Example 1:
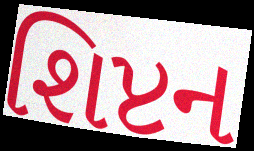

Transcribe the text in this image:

શિપ્ટન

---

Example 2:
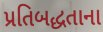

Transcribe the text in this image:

પ્રતિબદ્ધતાના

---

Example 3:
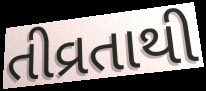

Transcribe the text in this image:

તીવ્રતાથી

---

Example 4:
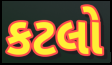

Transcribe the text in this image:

કટલો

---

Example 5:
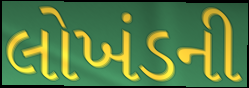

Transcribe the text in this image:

લોખંડની